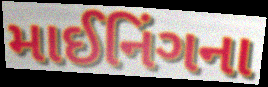
માઈનિંગના